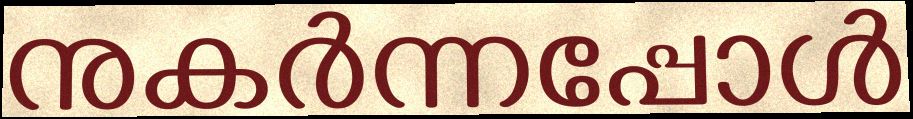
നുകർന്നപ്പോൾ